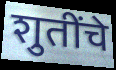
श्रुतींचे